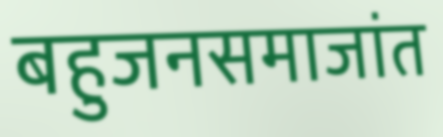
बहुजनसमाजांत